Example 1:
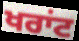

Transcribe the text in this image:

ਖਰਾਂਟ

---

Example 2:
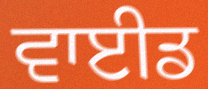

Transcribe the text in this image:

ਵਾਈਡ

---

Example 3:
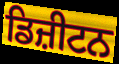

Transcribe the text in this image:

ਡਿਜ਼ੀਟਨ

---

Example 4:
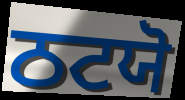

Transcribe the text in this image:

ਠਟਯੋ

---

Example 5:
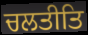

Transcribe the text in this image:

ਚਲਤੀਤਿ